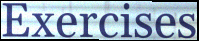
Exercises